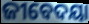
ଜୀବେଦୟା